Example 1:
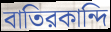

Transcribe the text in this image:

বাতিরকান্দি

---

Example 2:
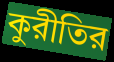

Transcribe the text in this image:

কুরীতির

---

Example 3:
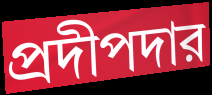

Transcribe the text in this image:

প্রদীপদার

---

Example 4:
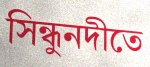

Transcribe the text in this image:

সিন্ধুনদীতে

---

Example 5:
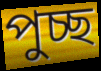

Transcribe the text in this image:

পুচ্ছ